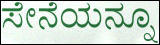
ಸೇನೆಯನ್ನೂ